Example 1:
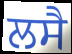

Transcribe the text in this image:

ਲਸੈ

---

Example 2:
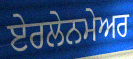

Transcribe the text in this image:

ਏਰਲੇਨਮੇਅਰ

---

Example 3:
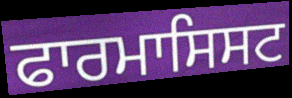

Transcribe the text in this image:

ਫਾਰਮਾਸਿਸਟ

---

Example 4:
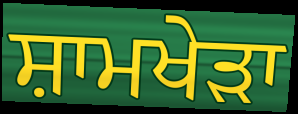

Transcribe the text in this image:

ਸ਼ਾਮਖੇੜਾ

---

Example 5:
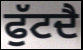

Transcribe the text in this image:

ਫੁੱਟਦੈ